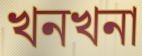
খনখনা